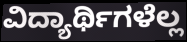
ವಿದ್ಯಾರ್ಥಿಗಳೆಲ್ಲ